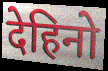
देहिनो